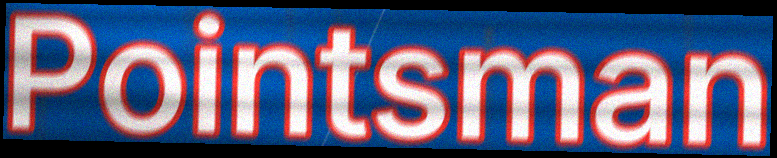
Pointsman